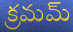
క్రమమ్